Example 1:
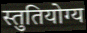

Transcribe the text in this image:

स्तुतियोग्य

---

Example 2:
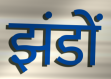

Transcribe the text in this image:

झंडों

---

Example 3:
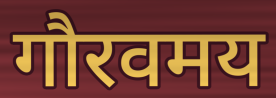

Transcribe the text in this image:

गौरवमय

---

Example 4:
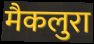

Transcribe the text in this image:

मैकलुरा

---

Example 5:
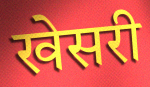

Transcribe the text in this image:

खेसरी